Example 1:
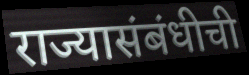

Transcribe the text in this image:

राज्यासंबंधीची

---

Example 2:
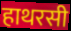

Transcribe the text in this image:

हाथरसी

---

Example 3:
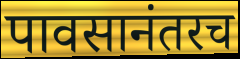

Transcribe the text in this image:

पावसानंतरच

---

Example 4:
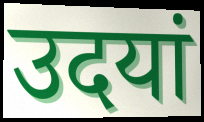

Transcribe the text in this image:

उदयां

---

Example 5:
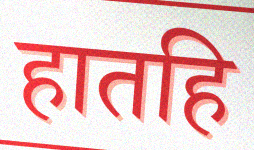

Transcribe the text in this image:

हातहि